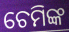
ଚେମିଙ୍କ